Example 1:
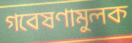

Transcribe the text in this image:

গবেষণামুলক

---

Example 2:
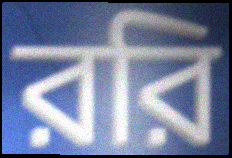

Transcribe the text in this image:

ররি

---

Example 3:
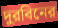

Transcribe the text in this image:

দুরবিনের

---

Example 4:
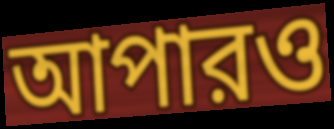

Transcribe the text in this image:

আপারও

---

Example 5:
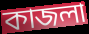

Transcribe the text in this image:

কাজলা